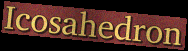
Icosahedron